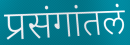
प्रसंगांतलं